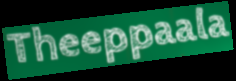
Theeppaala